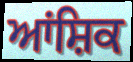
ਆਂਸ਼ਿਕ